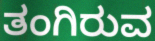
ತಂಗಿರುವ